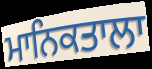
ਮਾਨਿਕਤਾਲਾ